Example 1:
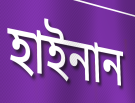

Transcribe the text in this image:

হাইনান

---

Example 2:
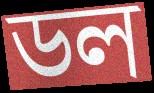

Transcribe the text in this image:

ডল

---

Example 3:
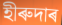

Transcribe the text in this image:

হীৰুদাৰ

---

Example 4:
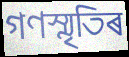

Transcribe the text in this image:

গণস্মৃতিৰ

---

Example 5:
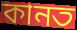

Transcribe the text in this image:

কানত